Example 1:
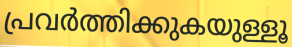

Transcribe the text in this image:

പ്രവർത്തിക്കുകയുള്ളൂ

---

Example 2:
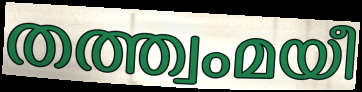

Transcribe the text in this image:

തത്ത്വംമയീ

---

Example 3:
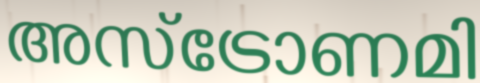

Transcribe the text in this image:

അസ്ട്രോണമി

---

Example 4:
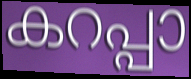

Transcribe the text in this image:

കറപ്പാ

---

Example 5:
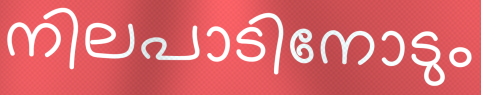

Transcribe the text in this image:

നിലപാടിനോടും